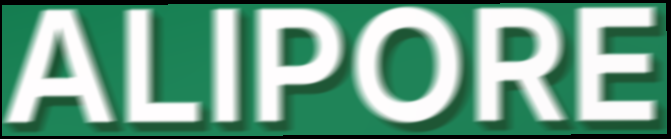
ALIPORE